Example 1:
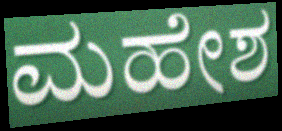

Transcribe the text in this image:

ಮಹೇಶ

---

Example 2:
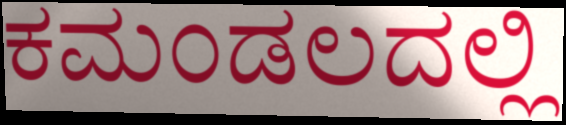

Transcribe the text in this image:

ಕಮಂಡಲದಲ್ಲಿ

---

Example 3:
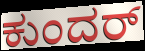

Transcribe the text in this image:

ಕುಂದರ್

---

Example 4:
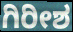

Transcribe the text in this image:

ಗಿರೀಶ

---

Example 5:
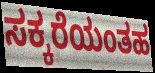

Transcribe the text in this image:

ಸಕ್ಕರೆಯಂತಹ